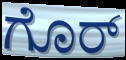
ಗೊರ್